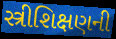
સ્ત્રીશિક્ષણની